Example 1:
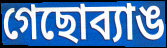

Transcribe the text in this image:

গেছোব্যাঙ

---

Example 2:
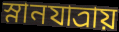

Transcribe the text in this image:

স্নানযাত্রায়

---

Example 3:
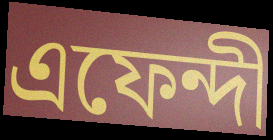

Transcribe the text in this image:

এফেন্দী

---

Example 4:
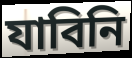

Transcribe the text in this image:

যাবিনি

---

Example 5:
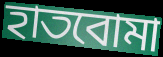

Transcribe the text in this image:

হাতবোমা